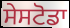
ਸੇਸਟੋਡਾ